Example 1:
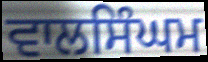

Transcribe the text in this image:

ਵਾਲਸਿੰਘਮ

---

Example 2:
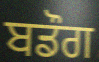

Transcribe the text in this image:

ਬਡੌਗ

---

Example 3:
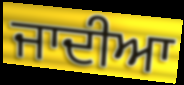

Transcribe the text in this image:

ਜਾਦੀਆ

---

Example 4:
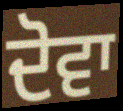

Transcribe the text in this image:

ਦੋਵਾ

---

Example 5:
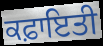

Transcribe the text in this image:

ਕਫ਼ਾਇਤੀ